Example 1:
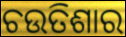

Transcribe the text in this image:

ଚଉତିଶାର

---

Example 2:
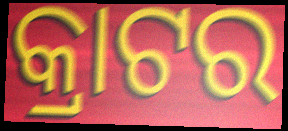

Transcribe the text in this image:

କ୍ରାଟର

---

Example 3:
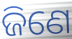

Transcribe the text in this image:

ଜିଣେ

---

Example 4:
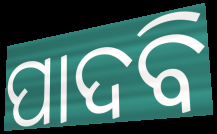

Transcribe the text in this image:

ପାଦବି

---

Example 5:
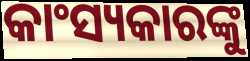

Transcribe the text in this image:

କାଂସ୍ୟକାରଙ୍କୁ